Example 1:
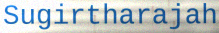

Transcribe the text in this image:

Sugirtharajah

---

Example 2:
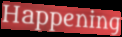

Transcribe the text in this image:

Happening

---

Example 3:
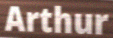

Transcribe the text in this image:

Arthur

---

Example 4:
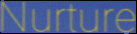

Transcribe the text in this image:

Nurture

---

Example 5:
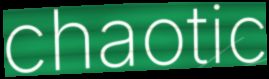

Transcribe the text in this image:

chaotic